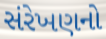
સંરેખણનો